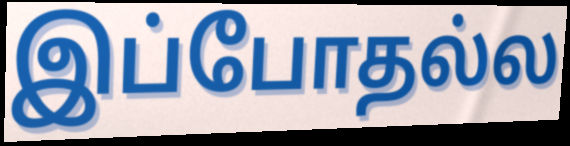
இப்போதல்ல